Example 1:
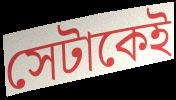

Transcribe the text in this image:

সেটাকেই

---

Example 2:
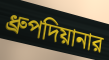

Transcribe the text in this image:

ধ্রুপদিয়ানার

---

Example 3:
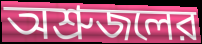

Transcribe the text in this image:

অশ্রুজলের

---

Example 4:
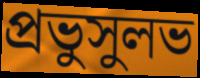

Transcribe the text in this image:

প্রভুসুলভ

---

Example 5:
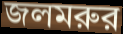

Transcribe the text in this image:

জলমরুর